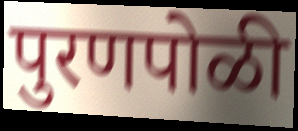
पुरणपोळी